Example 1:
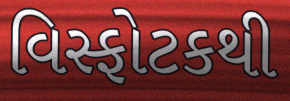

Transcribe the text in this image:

વિસ્ફોટકથી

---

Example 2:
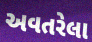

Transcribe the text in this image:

અવતરેલા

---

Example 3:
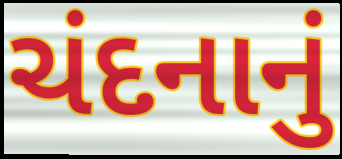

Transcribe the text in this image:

ચંદનાનું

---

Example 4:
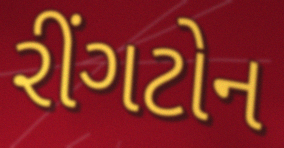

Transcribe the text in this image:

રીંગટોન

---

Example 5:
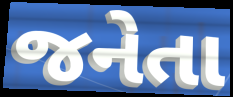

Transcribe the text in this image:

જનેતા